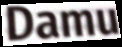
Damu